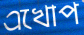
এখোপ